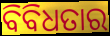
ବିବିଧତାର